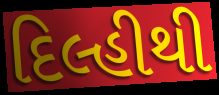
દિલ્હીથી